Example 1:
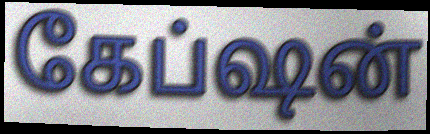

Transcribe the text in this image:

கேப்ஷன்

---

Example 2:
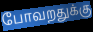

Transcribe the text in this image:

போவறதுக்கு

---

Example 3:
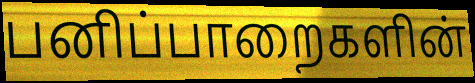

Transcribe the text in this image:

பனிப்பாறைகளின்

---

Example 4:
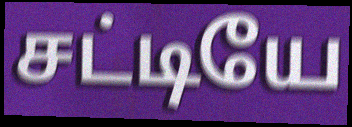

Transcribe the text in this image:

சட்டியே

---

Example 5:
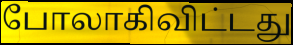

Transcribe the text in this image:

போலாகிவிட்டது